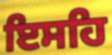
ਇਸਹਿ